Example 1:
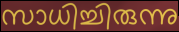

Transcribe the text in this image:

സാധിച്ചിരുന്നു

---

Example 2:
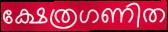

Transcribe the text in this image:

ക്ഷേത്രഗണിത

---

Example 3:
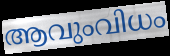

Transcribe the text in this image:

ആവുംവിധം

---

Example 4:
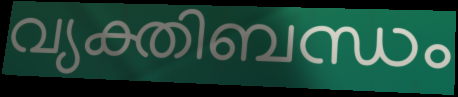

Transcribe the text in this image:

വ്യക്തിബന്ധം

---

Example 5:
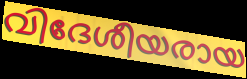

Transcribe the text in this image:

വിദേശീയരായ